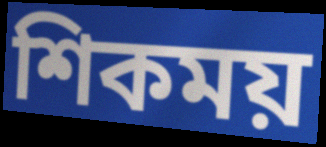
শিকময়